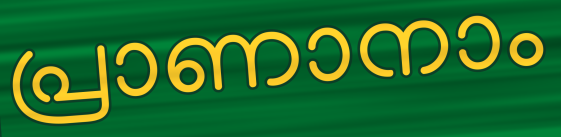
പ്രാണാനാം